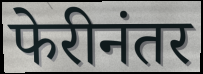
फेरीनंतर